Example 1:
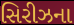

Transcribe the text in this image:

સિરીઝના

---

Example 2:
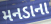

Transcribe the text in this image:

મનડાના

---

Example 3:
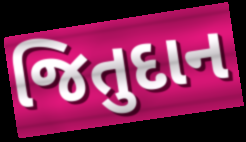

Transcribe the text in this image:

જિતુદાન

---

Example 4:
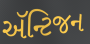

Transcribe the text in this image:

ઍન્ટિજન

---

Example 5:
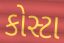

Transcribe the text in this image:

કોસ્ટા